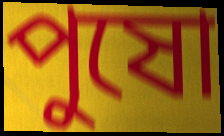
পুষো